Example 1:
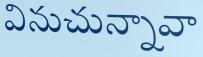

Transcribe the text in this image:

వినుచున్నావా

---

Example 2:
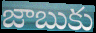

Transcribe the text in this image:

జాబుకు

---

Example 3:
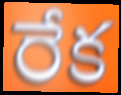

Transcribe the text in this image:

రేక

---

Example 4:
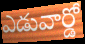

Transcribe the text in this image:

ఎడువార్డో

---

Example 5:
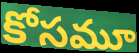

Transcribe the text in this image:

కోసమూ